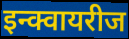
इन्क्वायरीज